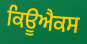
ਕਿਊਐਕਸ